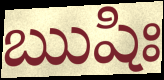
ఋషిః